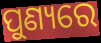
ପୁଣ୍ୟରେ